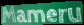
Mameru